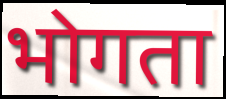
भोगता